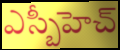
ఎస్బీహెచ్